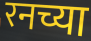
रनच्या